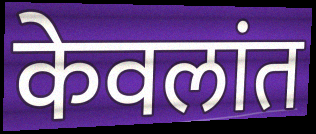
केवलांत